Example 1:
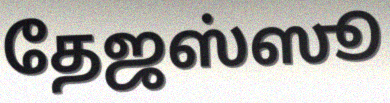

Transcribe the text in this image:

தேஜஸ்ஸூ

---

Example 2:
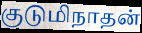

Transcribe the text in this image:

குடுமிநாதன்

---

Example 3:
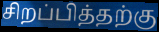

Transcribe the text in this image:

சிறப்பித்தற்கு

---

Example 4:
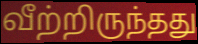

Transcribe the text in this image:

வீற்றிருந்தது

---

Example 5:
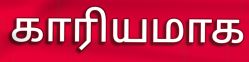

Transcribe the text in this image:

காரியமாக